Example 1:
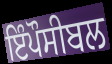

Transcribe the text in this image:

ਇੰਪੌਸੀਬਲ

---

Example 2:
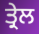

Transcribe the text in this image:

ਤ੍ਰੇਲ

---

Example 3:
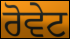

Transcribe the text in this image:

ਰੋਵੇਟ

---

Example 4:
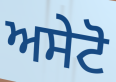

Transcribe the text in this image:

ਅਸੇਟੋ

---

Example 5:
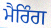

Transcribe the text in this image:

ਮੈਰਿੰਗ